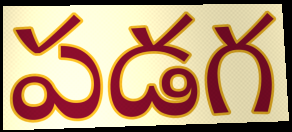
పడగ